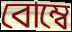
বোম্বে